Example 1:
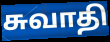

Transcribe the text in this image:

சுவாதி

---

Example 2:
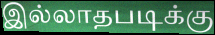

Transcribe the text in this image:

இல்லாதபடிக்கு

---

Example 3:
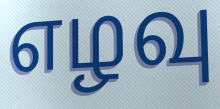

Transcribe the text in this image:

எழவு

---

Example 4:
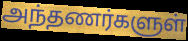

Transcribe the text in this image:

அந்தணர்களுள்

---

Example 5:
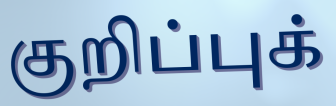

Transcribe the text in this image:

குறிப்புக்